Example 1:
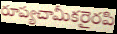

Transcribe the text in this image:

రూప్యచామీకరైరపి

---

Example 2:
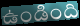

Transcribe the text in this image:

ఉండింది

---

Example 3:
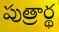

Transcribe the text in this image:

పుత్రార్థ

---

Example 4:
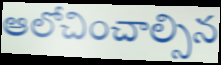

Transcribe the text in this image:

ఆలోచించాల్సిన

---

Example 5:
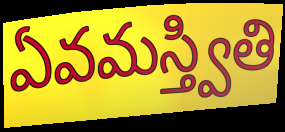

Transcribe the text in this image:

ఏవమస్త్వితి